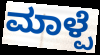
ಮಾಳ್ಪೆ